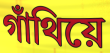
গাঁথিয়ে